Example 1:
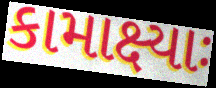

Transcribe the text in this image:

કામાક્ષ્યાઃ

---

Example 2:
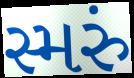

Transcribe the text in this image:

સ્મરું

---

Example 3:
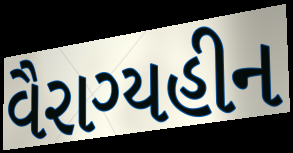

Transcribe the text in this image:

વૈરાગ્યહીન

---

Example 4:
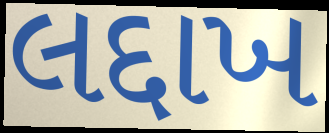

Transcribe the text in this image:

લદ્દાખ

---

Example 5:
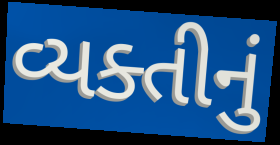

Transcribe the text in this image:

વ્યક્તીનું